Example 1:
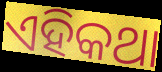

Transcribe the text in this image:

ଏହିକଥା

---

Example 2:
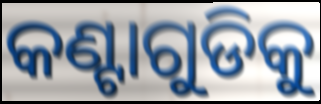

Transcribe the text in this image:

କଣ୍ଟାଗୁଡିକୁ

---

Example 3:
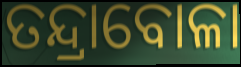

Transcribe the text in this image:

ତନ୍ଦ୍ରାବୋଳା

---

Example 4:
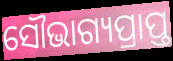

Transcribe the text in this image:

ସୌଭାଗ୍ୟପ୍ରାପ୍ତ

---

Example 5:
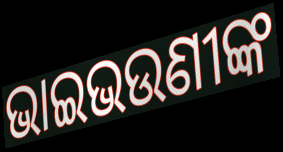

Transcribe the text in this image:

ଭାଇଭଉଣୀଙ୍କ